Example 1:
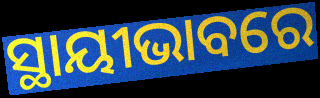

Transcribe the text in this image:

ସ୍ଥାୟୀଭାବରେ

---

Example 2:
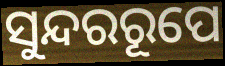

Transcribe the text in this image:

ସୁନ୍ଦରରୂପେ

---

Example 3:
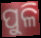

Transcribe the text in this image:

ପୁଳି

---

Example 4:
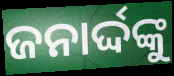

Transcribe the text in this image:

ଜନାର୍ଦ୍ଦଙ୍କୁ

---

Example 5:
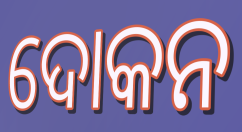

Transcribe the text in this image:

ଦୋକନ